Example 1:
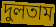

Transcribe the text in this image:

দুলতাম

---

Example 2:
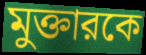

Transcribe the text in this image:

মুক্তারকে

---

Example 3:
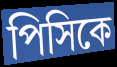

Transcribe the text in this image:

পিসিকে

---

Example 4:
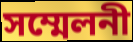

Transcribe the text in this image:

সম্মেলনী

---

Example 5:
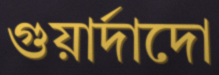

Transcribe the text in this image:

গুয়ার্দাদো